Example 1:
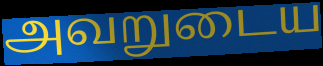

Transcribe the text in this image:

அவறுடைய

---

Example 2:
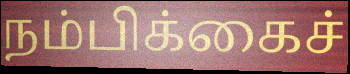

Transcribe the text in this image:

நம்பிக்கைச்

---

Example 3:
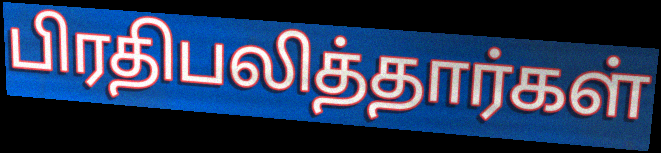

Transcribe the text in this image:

பிரதிபலித்தார்கள்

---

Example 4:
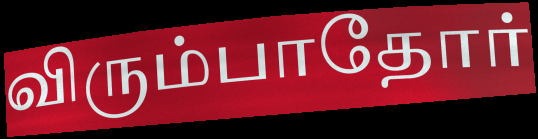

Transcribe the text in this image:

விரும்பாதோர்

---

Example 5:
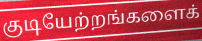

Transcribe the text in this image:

குடியேற்றங்களைக்